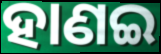
ହାଣଇ